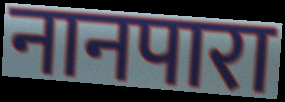
नानपारा